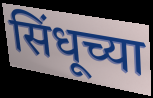
सिंधूच्या